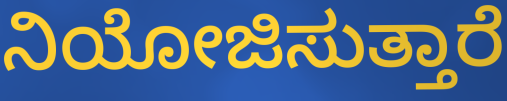
ನಿಯೋಜಿಸುತ್ತಾರೆ